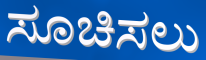
ಸೂಚಿಸಲು